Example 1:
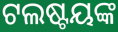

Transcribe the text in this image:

ଟଲଷ୍ଟୟଙ୍କ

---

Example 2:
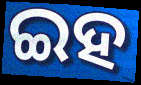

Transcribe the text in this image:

ଇହ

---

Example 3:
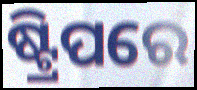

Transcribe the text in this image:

ଷ୍ଟ୍ରିପରେ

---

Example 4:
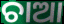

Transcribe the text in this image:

ଚାଆ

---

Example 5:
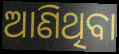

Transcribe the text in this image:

ଆଣିଥିବା